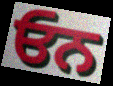
ਓਨ